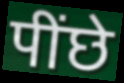
पींछे